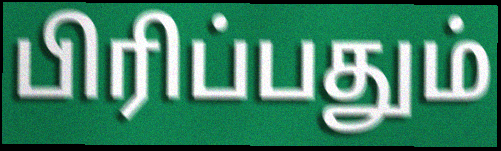
பிரிப்பதும்